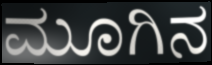
ಮೂಗಿನ